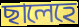
ছালেহে